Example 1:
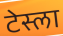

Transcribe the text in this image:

टेस्ला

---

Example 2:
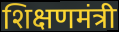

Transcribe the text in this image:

शिक्षणमंत्री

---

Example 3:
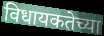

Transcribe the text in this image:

विधायकतेच्या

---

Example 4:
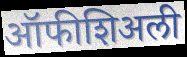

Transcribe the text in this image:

ऑफीशिअली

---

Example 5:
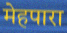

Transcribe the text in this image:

मेहपारा